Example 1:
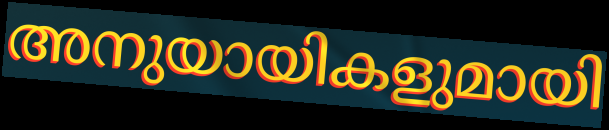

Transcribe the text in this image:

അനുയായികളുമായി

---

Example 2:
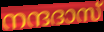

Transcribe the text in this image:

നന്ദദാസ്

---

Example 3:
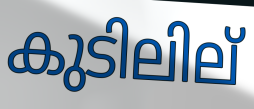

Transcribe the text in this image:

കുടിലില്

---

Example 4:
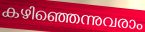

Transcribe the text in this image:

കഴിഞ്ഞെന്നുവരാം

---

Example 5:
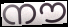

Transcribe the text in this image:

നൗ